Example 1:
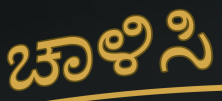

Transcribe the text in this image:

ಚಾಳಿಸಿ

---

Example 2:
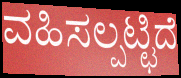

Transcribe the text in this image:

ವಹಿಸಲ್ಪಟ್ಟಿದೆ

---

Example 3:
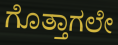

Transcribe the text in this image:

ಗೊತ್ತಾಗಲೇ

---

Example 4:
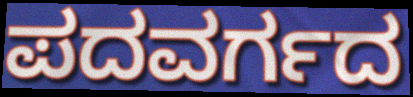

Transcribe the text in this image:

ಪದವರ್ಗದ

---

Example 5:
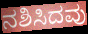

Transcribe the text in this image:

ನಶಿಸಿದವು